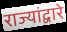
राज्यांद्वारे